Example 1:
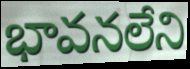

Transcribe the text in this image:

భావనలేని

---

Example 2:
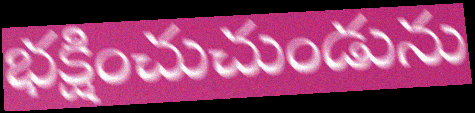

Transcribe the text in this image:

భక్షించుచుండును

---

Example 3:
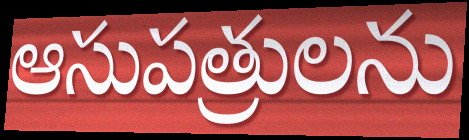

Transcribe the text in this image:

ఆసుపత్రులను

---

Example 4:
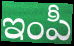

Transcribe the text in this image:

ఇంపీ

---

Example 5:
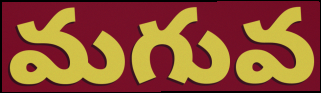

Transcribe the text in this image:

మగువ